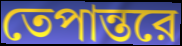
তেপান্তরে